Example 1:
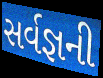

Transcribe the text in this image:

સર્વજ્ઞની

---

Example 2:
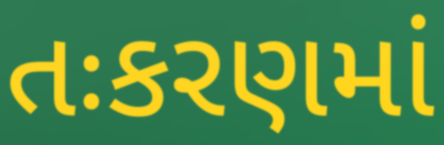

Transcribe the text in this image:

તઃકરણમાં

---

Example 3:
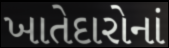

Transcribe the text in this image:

ખાતેદારોનાં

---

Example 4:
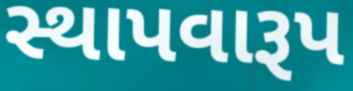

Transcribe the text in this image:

સ્થાપવારૂપ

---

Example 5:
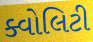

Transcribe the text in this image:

ક્વોલિટી